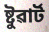
ষ্টুৱাৰ্ট